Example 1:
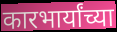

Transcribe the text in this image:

कारभार्यांच्या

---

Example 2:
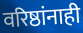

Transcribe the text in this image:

वरिष्ठांनाही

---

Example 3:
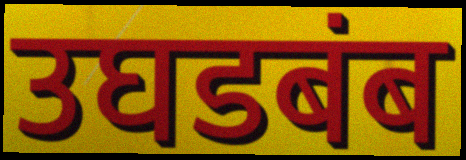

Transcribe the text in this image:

उघडबंब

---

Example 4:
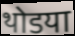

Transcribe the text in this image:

थोडया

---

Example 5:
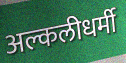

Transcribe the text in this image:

अल्कलीधर्मी